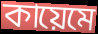
কায়েমে